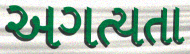
અગત્યતા